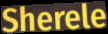
Sherele